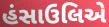
હંસાઉલિએ